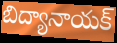
బిద్యానాయక్